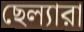
ছেল্যারা